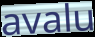
avalu